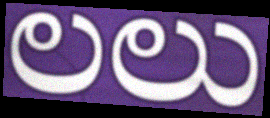
లలు